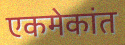
एकमेकांत